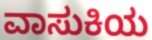
ವಾಸುಕಿಯ